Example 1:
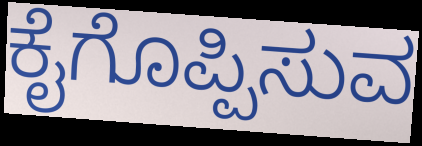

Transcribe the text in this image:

ಕೈಗೊಪ್ಪಿಸುವ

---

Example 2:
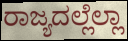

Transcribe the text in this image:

ರಾಜ್ಯದಲ್ಲೆಲ್ಲಾ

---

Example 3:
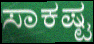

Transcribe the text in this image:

ಸಾಕಷ್ಟ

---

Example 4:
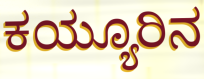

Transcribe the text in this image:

ಕಯ್ಯೂರಿನ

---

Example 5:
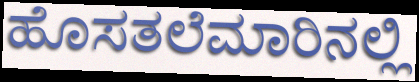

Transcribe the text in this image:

ಹೊಸತಲೆಮಾರಿನಲ್ಲಿ